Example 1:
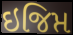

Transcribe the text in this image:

ઇજિપ્ત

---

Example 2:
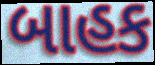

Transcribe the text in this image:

બાહક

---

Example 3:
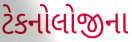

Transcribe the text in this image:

ટેકનોલોજીના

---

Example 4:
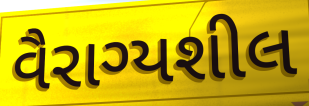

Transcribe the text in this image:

વૈરાગ્યશીલ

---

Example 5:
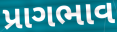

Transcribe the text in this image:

પ્રાગભાવ